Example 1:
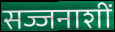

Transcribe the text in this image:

सज्जनाशीं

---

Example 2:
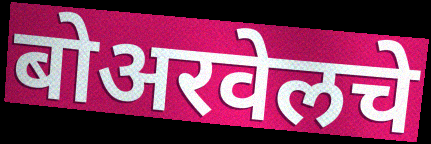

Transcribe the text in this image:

बोअरवेलचे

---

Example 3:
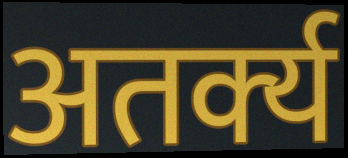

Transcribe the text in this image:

अतर्क्‍य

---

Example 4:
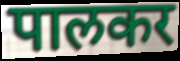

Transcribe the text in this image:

पालकर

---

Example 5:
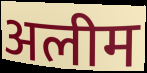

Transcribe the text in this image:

अलीम